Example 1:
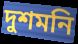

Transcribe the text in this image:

দুশমনি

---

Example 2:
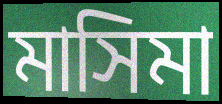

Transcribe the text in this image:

মাসিমা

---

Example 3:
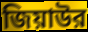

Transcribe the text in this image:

জিয়াউর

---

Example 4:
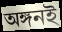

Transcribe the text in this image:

অঙ্গনই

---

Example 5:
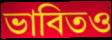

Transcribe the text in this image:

ভাবিতও